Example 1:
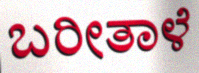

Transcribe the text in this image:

ಬರೀತಾಳೆ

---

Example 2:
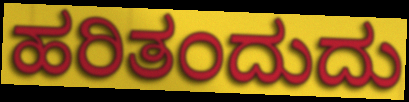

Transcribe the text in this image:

ಹರಿತಂದುದು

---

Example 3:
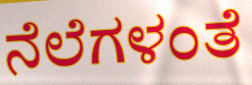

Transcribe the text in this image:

ನೆಲೆಗಳಂತೆ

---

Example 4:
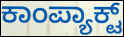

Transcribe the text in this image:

ಕಾಂಪ್ಯಾಕ್ಟ್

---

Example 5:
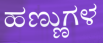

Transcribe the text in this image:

ಹಣ್ಣುಗಳ